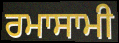
ਰਮਾਸਾਮੀ